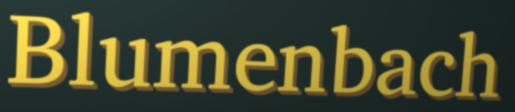
Blumenbach